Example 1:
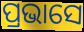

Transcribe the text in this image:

ପ୍ରଭାସେ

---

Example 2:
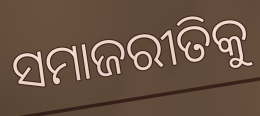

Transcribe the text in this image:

ସମାଜରୀତିକୁ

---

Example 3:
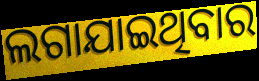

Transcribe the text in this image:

ଲଗାଯାଇଥିବାର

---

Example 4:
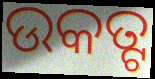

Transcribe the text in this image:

ଉକତ୍ଟ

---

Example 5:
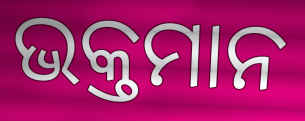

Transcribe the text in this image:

ଭକ୍ତମାନ